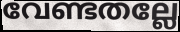
വേണ്ടതല്ലേ